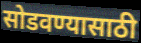
सोडवण्यासाठी